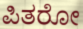
ಪಿತರೋ